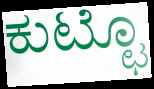
ಕುಟ್ಟೊ